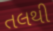
તલથી